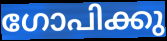
ഗോപിക്കു